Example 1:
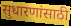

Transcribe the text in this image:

सुधारणांसाठी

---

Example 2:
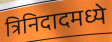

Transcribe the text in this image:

त्रिनिदादमध्ये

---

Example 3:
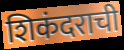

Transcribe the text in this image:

शिकंदराची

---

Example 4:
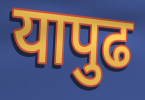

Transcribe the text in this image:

यापुढ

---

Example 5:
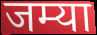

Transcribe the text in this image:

जम्या